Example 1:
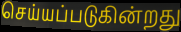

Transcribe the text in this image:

செய்யப்படுகின்றது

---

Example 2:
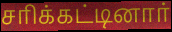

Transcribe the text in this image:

சரிக்கட்டினார்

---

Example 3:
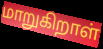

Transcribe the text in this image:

மாறுகிறாள்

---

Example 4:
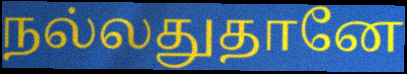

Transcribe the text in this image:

நல்லதுதானே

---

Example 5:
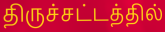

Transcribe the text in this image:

திருச்சட்டத்தில்